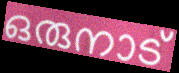
ഒരുനാട്